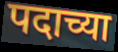
पदाच्या